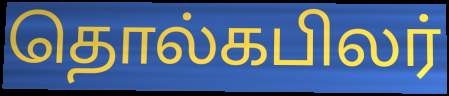
தொல்கபிலர்